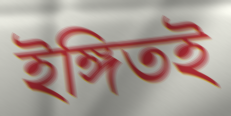
ইঙ্গিতই